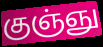
குஞ்ஞு